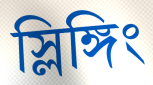
স্লিঙ্গিং